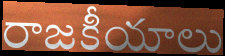
రాజకీయాలు